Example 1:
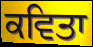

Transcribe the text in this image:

ਕਵਿਤਾ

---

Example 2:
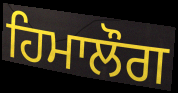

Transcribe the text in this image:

ਹਿਮਾਲੌਗ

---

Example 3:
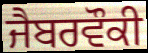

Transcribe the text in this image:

ਜੈਬਰਵੌਕੀ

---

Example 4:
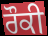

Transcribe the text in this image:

ਰੌਕੀ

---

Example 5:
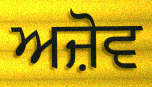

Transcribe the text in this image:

ਅਜ਼ੋਵ